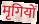
मृगियों